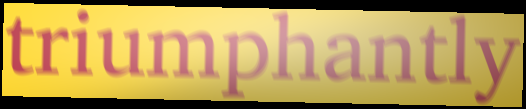
triumphantly